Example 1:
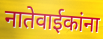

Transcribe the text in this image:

नातेवाईकांना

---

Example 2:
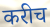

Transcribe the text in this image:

करीच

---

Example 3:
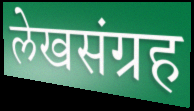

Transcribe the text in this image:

लेखसंग्रह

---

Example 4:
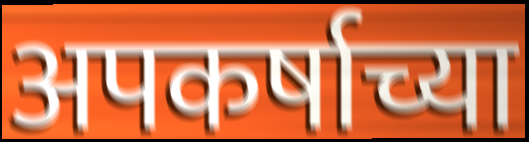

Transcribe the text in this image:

अपकर्षाच्या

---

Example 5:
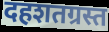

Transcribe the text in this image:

दहशतग्रस्त